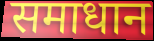
समाधान